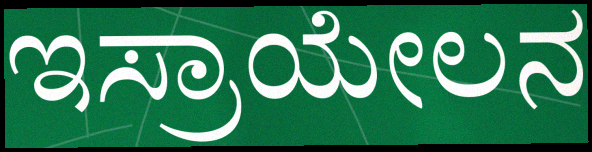
ಇಸ್ರಾಯೇಲನ